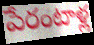
పేరంటాళ్ల